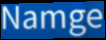
Namge